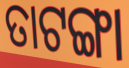
ତାଟଙ୍ଗା